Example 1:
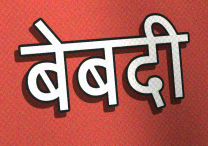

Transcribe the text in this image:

बेबदी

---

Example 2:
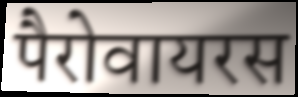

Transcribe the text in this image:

पैरोवायरस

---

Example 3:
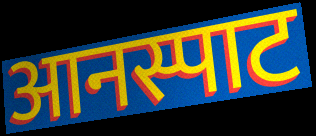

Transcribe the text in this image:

आनस्पाट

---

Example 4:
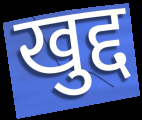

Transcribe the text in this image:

खुद्द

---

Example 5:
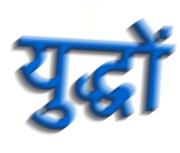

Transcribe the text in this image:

युद्धों